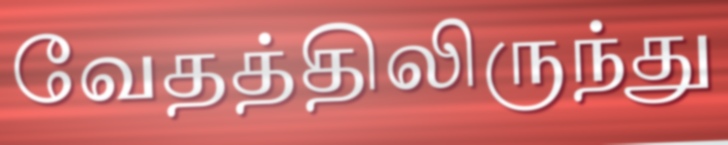
வேதத்திலிருந்து